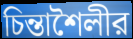
চিন্তাশৈলীর